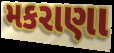
મકરાણા